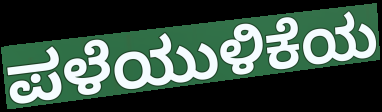
ಪಳೆಯುಳಿಕೆಯ